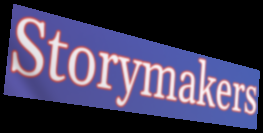
Storymakers